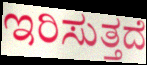
ಇರಿಸುತ್ತದೆ